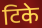
टिके